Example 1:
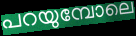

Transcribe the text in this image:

പറയുമ്പോലെ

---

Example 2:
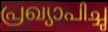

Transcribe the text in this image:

പ്രഖ്യാപിച്ചു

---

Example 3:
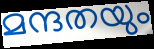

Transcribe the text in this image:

മന്ദതയും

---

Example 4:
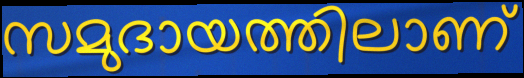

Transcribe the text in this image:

സമുദായത്തിലാണ്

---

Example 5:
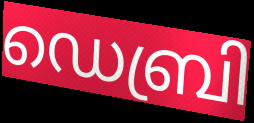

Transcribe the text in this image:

ഡെബ്രി